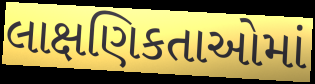
લાક્ષણિકતાઓમાં